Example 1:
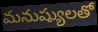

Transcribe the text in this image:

మనుష్యులతో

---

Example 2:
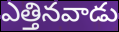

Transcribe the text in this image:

ఎత్తినవాడు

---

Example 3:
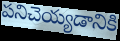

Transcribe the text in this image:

పనిచెయ్యడానికి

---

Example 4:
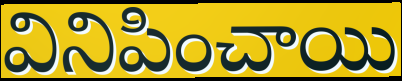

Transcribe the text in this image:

వినిపించాయి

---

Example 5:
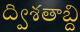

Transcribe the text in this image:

ద్విశతాబ్ది